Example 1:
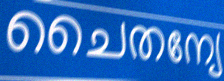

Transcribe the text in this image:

ചൈതന്യേ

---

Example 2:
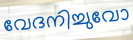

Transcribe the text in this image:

വേദനിച്ചുവോ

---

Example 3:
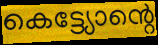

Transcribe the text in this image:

കെട്ട്യോന്റെ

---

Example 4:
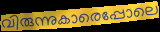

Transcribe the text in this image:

വിരുന്നുകാരെപ്പോലെ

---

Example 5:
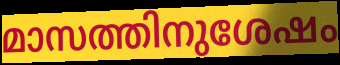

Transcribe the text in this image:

മാസത്തിനുശേഷം